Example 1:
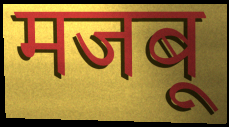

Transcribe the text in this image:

मजबू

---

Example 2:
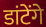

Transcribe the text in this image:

डांटेंगे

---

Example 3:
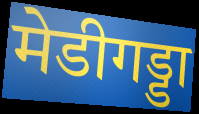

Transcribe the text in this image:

मेडीगड्डा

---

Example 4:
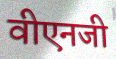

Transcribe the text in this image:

वीएनजी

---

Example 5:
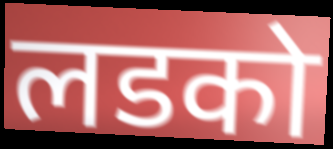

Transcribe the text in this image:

लडको